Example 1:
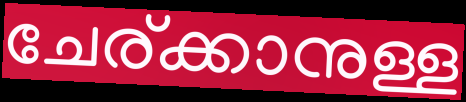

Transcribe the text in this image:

ചേര്ക്കാനുള്ള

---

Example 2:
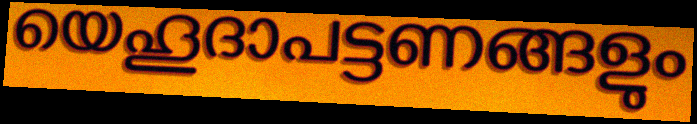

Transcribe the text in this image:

യെഹൂദാപട്ടണങ്ങളും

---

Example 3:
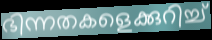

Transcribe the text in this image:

ഭിന്നതകളെക്കുറിച്ച്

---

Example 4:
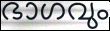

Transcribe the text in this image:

ഭാഗവും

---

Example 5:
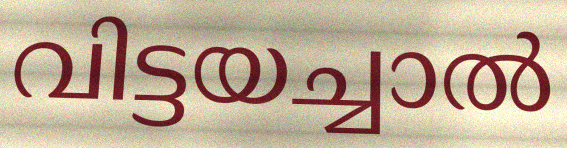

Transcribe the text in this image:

വിട്ടയച്ചാൽ